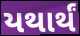
યથાર્થં